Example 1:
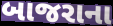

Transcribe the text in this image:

બાજરાના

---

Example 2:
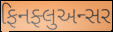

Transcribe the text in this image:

ફિનફ્લુઅન્સર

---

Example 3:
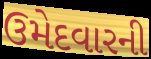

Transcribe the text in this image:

ઉમેદવારની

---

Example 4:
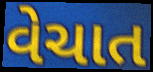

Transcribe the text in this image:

વેચાત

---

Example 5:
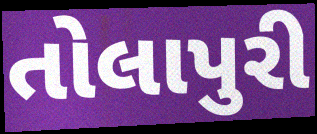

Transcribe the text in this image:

તોલાપુરી